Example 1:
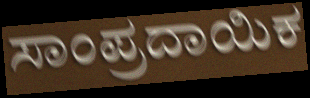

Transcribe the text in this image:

ಸಾಂಪ್ರದಾಯಿಕ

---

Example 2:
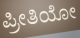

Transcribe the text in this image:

ಪ್ರೀತಿಯೋ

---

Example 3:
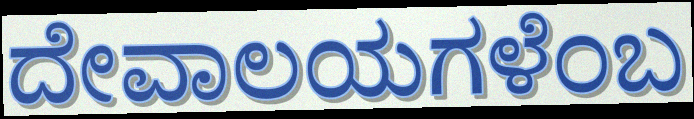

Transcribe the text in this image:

ದೇವಾಲಯಗಳೆಂಬ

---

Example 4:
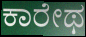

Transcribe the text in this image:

ಕಾರೇಥ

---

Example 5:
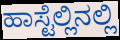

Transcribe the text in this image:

ಹಾಸ್ಟೆಲ್ಲಿನಲ್ಲಿ